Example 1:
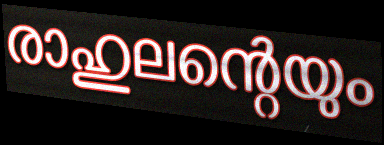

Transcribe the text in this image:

രാഹുലന്റെയും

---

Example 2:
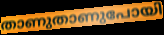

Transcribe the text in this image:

താണുതാണുപോയി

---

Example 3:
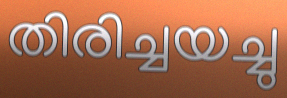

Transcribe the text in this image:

തിരിച്ചയച്ചു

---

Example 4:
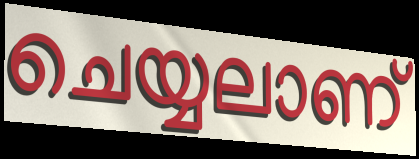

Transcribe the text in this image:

ചെയ്യലാണ്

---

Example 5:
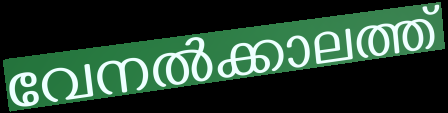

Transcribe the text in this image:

വേനൽക്കാലത്ത്